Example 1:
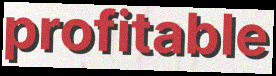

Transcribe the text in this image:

profitable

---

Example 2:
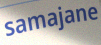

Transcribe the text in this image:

samajane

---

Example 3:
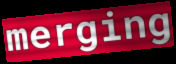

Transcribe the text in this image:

merging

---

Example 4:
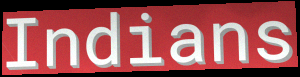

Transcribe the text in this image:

Indians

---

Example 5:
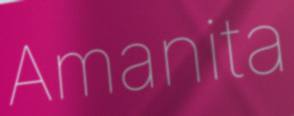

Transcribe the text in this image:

Amanita